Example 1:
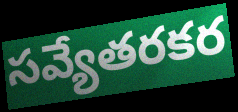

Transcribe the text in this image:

సవ్యేతరకర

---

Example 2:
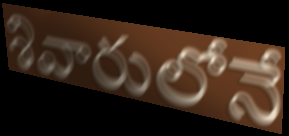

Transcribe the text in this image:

శివారులోనే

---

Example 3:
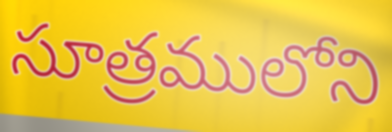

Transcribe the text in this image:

సూత్రములోని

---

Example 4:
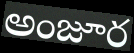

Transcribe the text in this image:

అంజూర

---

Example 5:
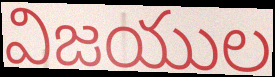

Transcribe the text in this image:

విజయుల